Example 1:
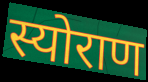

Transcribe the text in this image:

स्योराण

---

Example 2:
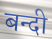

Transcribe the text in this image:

बन्दी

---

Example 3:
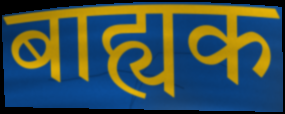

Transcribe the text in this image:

बाह्यक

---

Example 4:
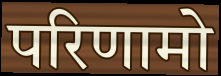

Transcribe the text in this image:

परिणामो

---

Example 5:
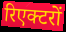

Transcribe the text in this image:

रिएक्टरों